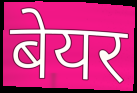
बेयर